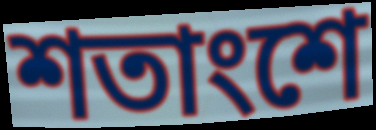
শতাংশে